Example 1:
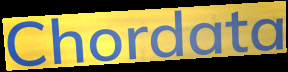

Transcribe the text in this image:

Chordata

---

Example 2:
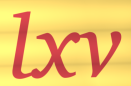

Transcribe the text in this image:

lxv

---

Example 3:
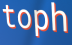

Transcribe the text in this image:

toph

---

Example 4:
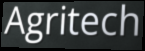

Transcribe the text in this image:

Agritech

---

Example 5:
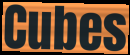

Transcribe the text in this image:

Cubes